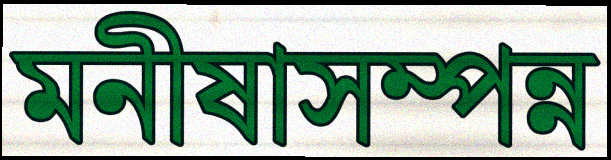
মনীষাসম্পন্ন